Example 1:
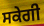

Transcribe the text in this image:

ਸਕੇਗੀ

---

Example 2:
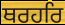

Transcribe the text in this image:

ਥਰਹਰਿ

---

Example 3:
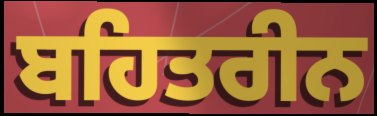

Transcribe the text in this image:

ਬਹਿਤਰੀਨ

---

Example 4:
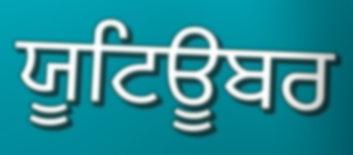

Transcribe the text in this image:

ਯੂਟਿਊਬਰ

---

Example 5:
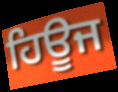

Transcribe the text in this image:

ਹਿਊਜ